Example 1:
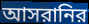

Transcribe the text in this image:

আসরানির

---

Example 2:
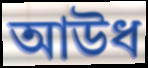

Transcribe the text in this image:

আউধ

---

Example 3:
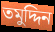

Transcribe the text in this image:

তমুদ্দিন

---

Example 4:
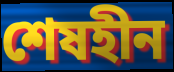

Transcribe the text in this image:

শেষহীন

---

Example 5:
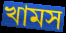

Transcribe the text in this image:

খামস